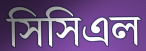
সিসিএল